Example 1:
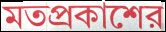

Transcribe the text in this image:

মতপ্রকাশের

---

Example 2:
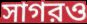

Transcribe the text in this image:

সাগরও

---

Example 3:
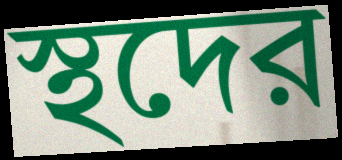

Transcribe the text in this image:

স্থদের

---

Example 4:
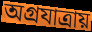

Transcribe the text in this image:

অগ্রযাত্রায়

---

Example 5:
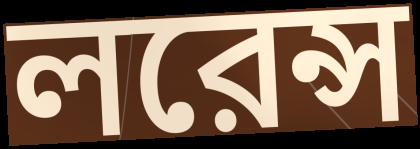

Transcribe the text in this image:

লরেন্স